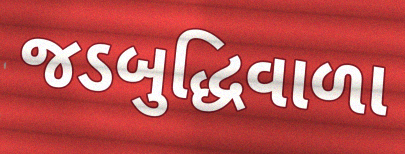
જડબુદ્ધિવાળા